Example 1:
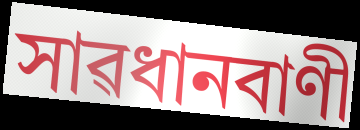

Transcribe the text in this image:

সাৱধানবাণী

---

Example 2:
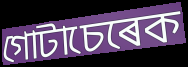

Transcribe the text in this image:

গোটাচেৰেক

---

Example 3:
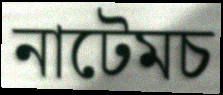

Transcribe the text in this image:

নাটেমচ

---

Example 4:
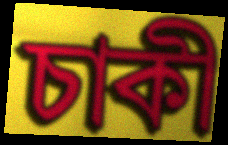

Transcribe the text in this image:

চাকী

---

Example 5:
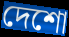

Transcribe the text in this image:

দেশো